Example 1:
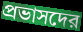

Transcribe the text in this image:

প্রভাসদের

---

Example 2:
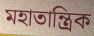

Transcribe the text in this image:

মহাতান্ত্রিক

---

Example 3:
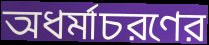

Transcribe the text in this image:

অধর্মাচরণের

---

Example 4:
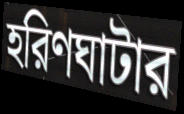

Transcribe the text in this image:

হরিণঘাটার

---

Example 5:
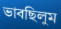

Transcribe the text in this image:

ভাবছিলুম